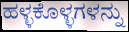
ಹಳ್ಳಕೊಳ್ಳಗಳನ್ನು